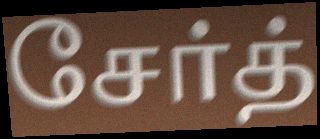
சேர்த்